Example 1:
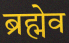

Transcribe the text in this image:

ब्रह्मेव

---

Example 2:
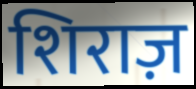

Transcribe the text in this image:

शिराज़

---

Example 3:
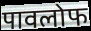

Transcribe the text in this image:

पावलोफ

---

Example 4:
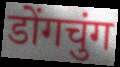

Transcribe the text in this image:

डोंगचुंग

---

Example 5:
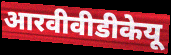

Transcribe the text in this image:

आरवीवीडीकेयू